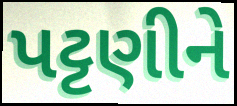
પટ્ટણીને